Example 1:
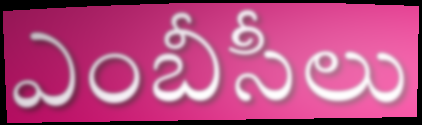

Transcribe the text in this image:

ఎంబీసీలు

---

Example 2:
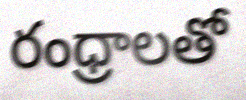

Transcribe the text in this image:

రంధ్రాలతో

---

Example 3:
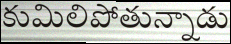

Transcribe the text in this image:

కుమిలిపోతున్నాడు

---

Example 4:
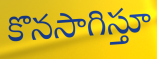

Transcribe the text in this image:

కొనసాగిస్తూ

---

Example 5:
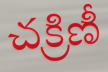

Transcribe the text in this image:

చక్రిణీ